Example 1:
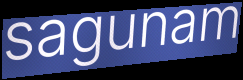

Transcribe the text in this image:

sagunam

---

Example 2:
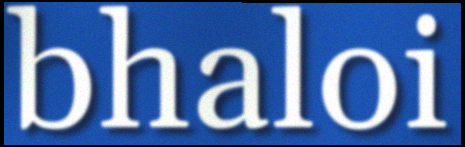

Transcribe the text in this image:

bhaloi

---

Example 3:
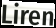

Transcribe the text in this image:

Liren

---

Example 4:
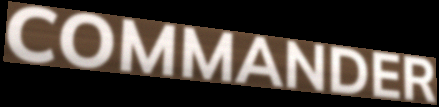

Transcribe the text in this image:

COMMANDER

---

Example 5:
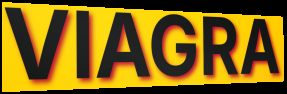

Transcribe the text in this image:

VIAGRA